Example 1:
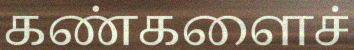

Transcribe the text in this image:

கண்களைச்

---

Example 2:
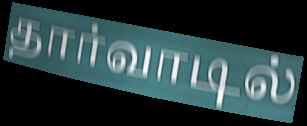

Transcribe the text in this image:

தார்வாடில்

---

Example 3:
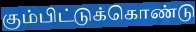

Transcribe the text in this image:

கும்பிட்டுக்கொண்டு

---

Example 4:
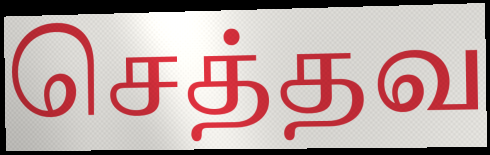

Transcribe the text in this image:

செத்தவ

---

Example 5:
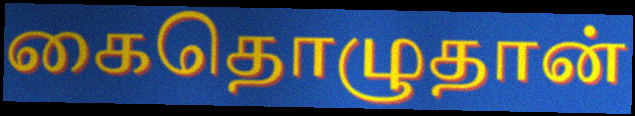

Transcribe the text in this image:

கைதொழுதான்